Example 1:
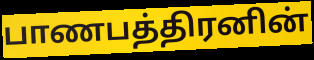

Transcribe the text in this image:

பாணபத்திரனின்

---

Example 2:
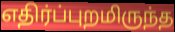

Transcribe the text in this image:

எதிர்ப்புறமிருந்த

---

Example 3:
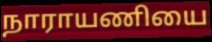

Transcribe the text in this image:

நாராயணியை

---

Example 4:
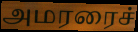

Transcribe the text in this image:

அமரரைச்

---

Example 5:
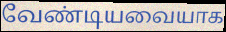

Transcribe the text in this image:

வேண்டியவையாக